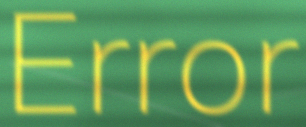
Error